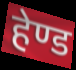
हेण्ड